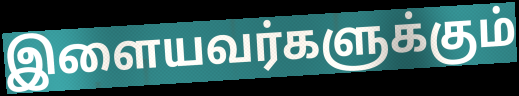
இளையவர்களுக்கும்